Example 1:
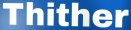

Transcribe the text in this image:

Thither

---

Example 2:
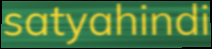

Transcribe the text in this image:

satyahindi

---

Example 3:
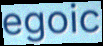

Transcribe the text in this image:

egoic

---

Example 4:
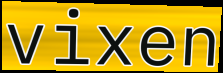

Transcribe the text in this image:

vixen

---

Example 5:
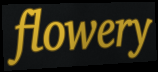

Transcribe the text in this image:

flowery